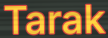
Tarak